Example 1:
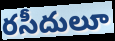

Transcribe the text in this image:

రసీదులూ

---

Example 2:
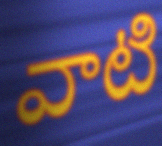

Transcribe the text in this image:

వాటి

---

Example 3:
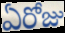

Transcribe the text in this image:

ఏరోజు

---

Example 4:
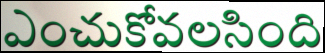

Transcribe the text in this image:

ఎంచుకోవలసింది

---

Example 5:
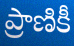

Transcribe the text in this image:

ప్రాణికీ